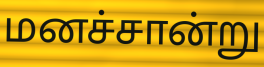
மனச்சான்று